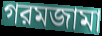
গরমজামা